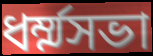
ধর্ম্মসভা